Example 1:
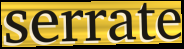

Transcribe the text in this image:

serrate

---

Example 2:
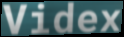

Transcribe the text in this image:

Videx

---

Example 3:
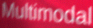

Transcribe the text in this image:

Multimodal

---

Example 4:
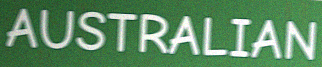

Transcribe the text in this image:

AUSTRALIAN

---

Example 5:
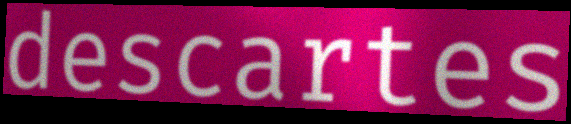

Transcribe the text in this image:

descartes